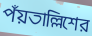
পঁয়তাল্লিশের